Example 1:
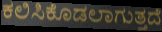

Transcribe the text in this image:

ಕಲಿಸಿಕೊಡಲಾಗುತ್ತದೆ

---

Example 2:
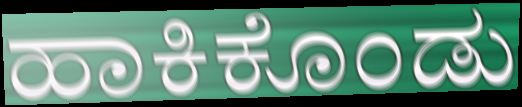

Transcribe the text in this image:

ಹಾಕಿಕೊಂಡು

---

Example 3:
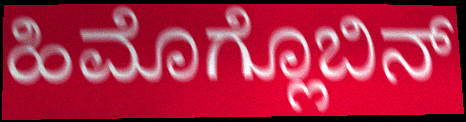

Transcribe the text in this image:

ಹಿಮೊಗ್ಲೊಬಿನ್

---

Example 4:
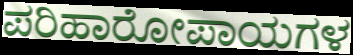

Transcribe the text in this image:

ಪರಿಹಾರೋಪಾಯಗಳ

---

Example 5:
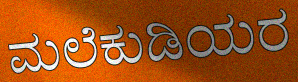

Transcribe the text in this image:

ಮಲೆಕುಡಿಯರ